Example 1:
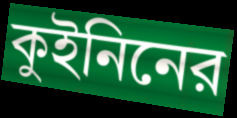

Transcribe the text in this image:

কুইনিনের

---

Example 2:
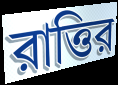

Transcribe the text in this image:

রাত্তির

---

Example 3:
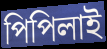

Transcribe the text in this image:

পিপিলাই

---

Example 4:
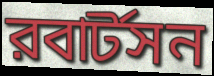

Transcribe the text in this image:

রবার্টসন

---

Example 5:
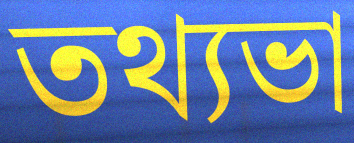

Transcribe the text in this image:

তথ্যভা